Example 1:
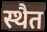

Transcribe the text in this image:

स्थैत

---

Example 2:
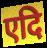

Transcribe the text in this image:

एदि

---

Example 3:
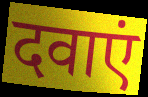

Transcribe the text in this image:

दवाएं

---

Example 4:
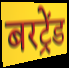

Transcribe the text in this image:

बरट्रेंड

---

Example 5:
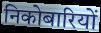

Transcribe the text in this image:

निकोबारियों